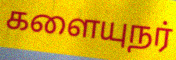
களையுநர்